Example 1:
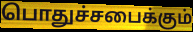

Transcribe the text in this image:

பொதுச்சபைக்கும்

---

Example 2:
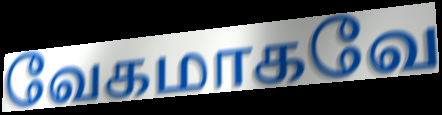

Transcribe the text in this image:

வேகமாகவே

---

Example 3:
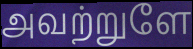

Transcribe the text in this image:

அவற்றுளே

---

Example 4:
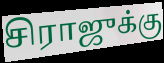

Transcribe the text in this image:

சிராஜுக்கு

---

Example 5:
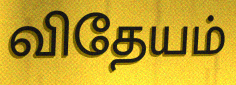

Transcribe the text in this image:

விதேயம்